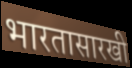
भारतासारखी